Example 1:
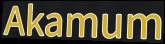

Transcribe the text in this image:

Akamum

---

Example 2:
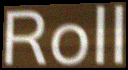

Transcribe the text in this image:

Roll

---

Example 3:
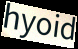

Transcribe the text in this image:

hyoid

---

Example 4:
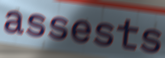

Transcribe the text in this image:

assests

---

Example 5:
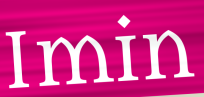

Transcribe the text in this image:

Imin